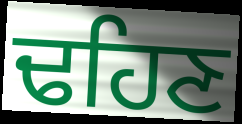
ਢਹਿਣ